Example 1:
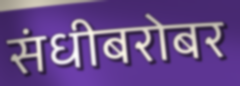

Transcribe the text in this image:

संधीबरोबर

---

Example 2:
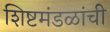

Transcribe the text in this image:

शिष्टमंडळांची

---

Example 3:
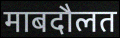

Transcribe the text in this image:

माबदौलत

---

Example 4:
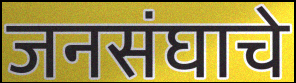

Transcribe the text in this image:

जनसंघाचे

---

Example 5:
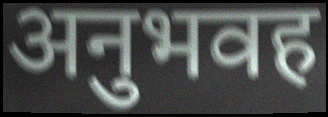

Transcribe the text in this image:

अनुभवह